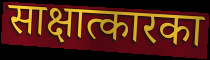
साक्षात्कारका